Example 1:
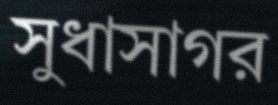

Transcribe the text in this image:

সুধাসাগর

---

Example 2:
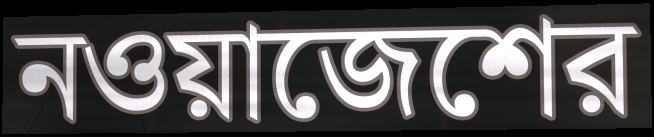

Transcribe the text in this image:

নওয়াজেশের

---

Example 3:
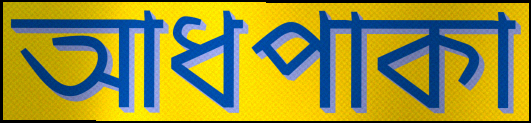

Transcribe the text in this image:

আধপাকা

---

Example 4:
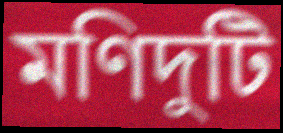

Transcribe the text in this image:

মণিদুটি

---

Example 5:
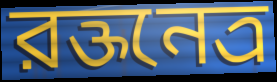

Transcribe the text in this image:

রক্তনেত্র